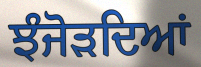
ਝੰਜੋੜਦਿਆਂ